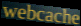
webcache